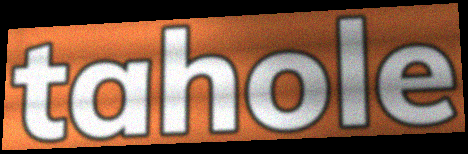
tahole